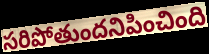
సరిపోతుందనిపించింది